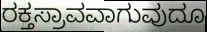
ರಕ್ತಸ್ರಾವವಾಗುವುದೂ